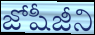
జోషీజీని